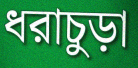
ধরাচুড়া